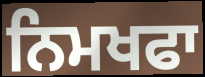
ਨਿਮਖਫਾ